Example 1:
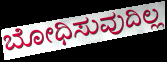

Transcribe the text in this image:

ಬೋಧಿಸುವುದಿಲ್ಲ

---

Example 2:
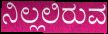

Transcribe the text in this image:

ನಿಲ್ಲಲಿರುವ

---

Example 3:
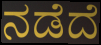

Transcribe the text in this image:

ನಡೆದೆ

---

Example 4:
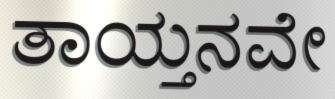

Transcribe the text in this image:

ತಾಯ್ತನವೇ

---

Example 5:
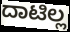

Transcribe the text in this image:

ದಾಟಿಲ್ಲ